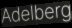
Adelberg